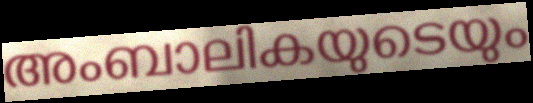
അംബാലികയുടെയും